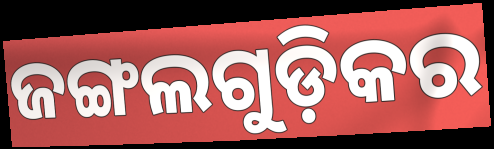
ଜଙ୍ଗଲଗୁଡ଼ିକର